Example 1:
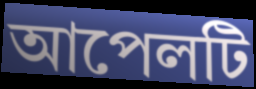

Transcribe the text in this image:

আপেলটি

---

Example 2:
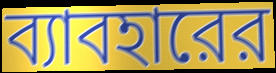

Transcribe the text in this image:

ব্যাবহারের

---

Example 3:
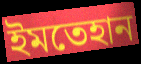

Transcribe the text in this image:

ইমতেহান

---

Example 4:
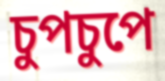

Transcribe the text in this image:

চুপচুপে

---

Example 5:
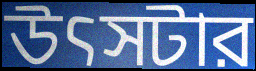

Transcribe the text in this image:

উৎসটার